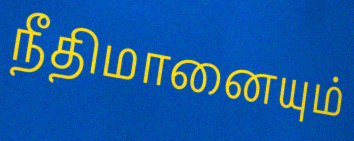
நீதிமானையும்